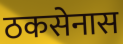
ठकसेनास